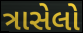
ત્રાસેલો